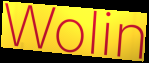
Wolin